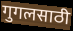
गुगलसाठी